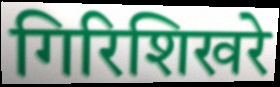
गिरिशिखरे